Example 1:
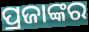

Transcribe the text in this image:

ପ୍ରଜାଙ୍କର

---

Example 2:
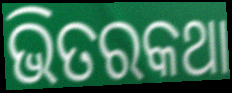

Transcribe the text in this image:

ଭିତରକଥା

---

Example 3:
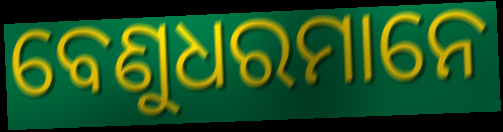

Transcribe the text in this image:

ବେଣୁଧରମାନେ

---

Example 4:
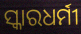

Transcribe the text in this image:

ସ୍କାରଧର୍ମୀ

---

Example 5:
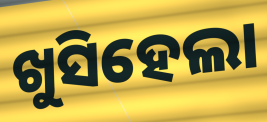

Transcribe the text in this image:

ଖୁସିହେଲା